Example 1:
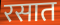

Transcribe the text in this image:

रसात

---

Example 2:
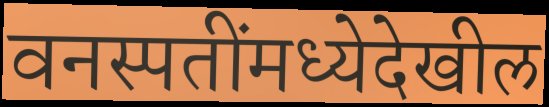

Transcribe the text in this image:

वनस्पतींमध्येदेखील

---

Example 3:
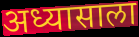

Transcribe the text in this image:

अध्यासाला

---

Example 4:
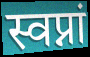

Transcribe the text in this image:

स्वप्नां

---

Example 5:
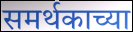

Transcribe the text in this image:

समर्थकाच्या